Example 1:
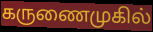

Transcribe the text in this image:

கருணைமுகில்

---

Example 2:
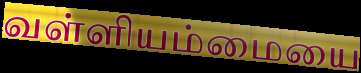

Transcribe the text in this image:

வள்ளியம்மையை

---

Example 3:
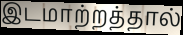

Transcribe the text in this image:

இடமாற்றத்தால்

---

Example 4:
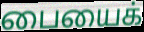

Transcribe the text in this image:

பையைக்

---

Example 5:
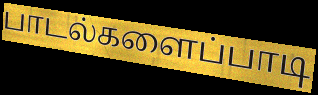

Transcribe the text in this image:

பாடல்களைப்பாடி